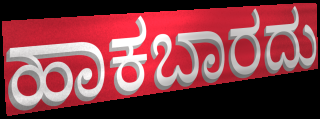
ಹಾಕಬಾರದು